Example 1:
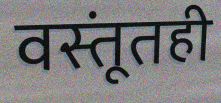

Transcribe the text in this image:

वस्तूंतही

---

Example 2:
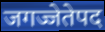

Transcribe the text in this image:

जगज्जेतेपद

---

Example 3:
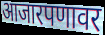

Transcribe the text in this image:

आजारपणावर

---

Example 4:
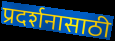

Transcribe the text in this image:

प्रदर्शनासाठी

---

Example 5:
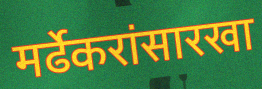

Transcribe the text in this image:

मर्ढेकरांसारखा